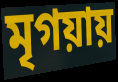
মৃগয়ায়